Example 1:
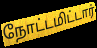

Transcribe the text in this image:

நோட்டமிட்டார்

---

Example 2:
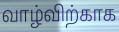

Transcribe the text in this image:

வாழ்விற்காக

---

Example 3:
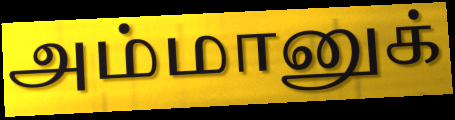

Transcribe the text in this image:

அம்மானுக்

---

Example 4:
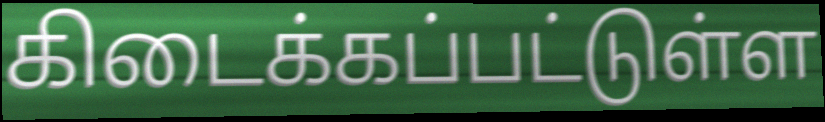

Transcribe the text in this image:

கிடைக்கப்பட்டுள்ள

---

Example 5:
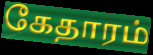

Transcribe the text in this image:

கேதாரம்